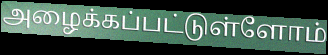
அழைக்கப்பட்டுள்ளோம்